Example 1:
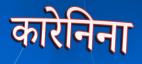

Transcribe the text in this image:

कारेनिना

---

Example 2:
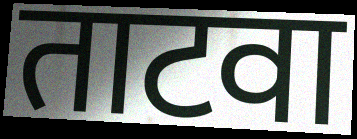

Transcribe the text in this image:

ताटवा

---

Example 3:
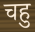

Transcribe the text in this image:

चहु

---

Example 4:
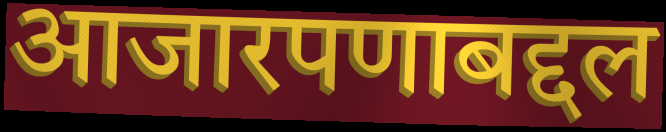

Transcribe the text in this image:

आजारपणाबद्दल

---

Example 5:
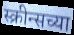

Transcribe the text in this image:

स्क्रीन्सच्या